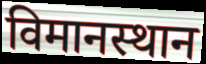
विमानस्थान